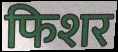
फिशर